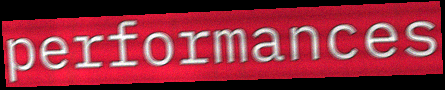
performances